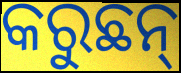
କରୁଛନ୍